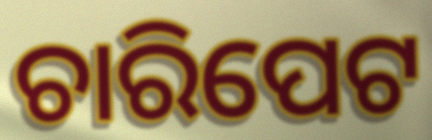
ଚାରିପେଟ